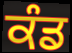
ਕੰਡ